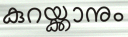
കുറയ്ക്കാനും